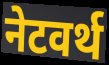
नेटवर्थ